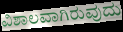
ವಿಶಾಲವಾಗಿರುವುದು